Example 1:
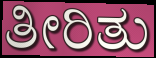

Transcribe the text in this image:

ತೀರಿತು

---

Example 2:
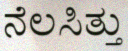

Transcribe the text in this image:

ನೆಲಸಿತ್ತು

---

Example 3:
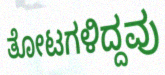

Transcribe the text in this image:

ತೋಟಗಳಿದ್ದವು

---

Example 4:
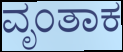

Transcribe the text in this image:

ವೃಂತಾಕ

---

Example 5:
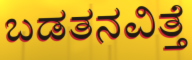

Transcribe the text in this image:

ಬಡತನವಿತ್ತೆ